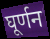
घूर्णन